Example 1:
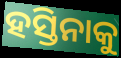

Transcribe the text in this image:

ହସ୍ତିନାକୁ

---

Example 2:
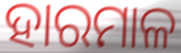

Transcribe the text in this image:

ହାରମାଳ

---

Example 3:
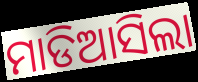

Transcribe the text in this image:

ମାଡିଆସିଲା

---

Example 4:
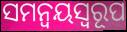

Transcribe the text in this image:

ସମନ୍ୱୟସ୍ୱରୂପ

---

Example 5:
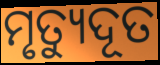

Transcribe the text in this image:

ମୃତ୍ୟୁଦୂତ